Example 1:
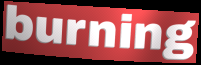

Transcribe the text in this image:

burning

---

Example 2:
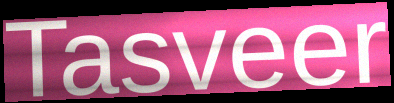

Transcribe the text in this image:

Tasveer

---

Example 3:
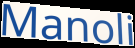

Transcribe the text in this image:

Manoli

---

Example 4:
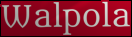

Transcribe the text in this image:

Walpola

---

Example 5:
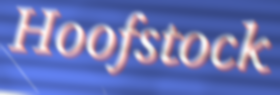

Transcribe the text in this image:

Hoofstock